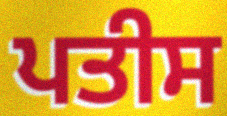
ਪਤੀਸ